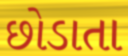
છોડાતા